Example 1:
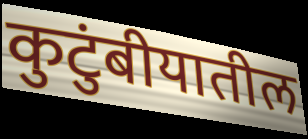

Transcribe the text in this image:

कुटुंबीयातील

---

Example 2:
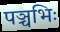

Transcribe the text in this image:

पञ्चभिः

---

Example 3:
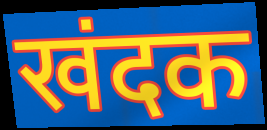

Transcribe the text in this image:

खंदक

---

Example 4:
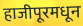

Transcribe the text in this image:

हाजीपूरमधून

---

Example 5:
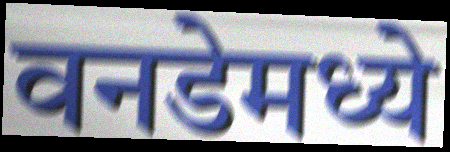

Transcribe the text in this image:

वनडेमध्ये